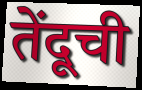
तेंदूची